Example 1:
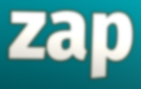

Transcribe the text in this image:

zap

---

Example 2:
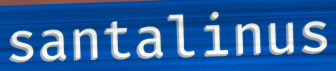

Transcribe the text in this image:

santalinus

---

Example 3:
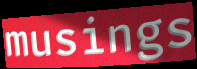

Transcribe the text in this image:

musings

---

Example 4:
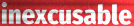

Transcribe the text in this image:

inexcusable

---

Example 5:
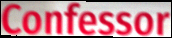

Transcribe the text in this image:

Confessor